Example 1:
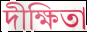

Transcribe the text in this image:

দীক্ষিতা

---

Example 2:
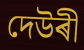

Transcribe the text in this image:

দেউৰী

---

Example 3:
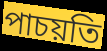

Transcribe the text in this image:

পাচয়তি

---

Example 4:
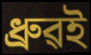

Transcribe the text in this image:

ধ্ৰুৱই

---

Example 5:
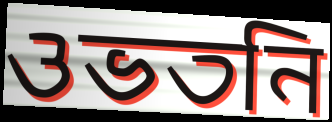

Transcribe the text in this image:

ওভতনি